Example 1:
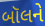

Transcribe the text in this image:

બૉલને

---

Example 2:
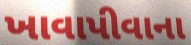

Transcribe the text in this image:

ખાવાપીવાના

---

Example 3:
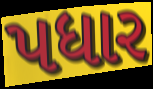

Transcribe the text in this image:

પધાર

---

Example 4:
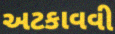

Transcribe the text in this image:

અટકાવવી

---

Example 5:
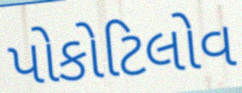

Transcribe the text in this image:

પોકોટિલોવ